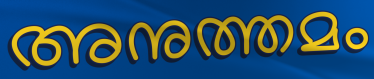
അനുത്തമം